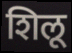
शिलू